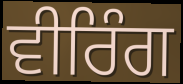
ਵੀਰਿੰਗ